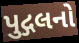
પુદ્ગલનો